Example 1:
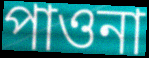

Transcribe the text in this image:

পাওনা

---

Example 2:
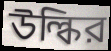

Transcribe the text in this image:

উল্কির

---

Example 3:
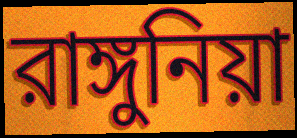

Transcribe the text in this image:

রাঙ্গুনিয়া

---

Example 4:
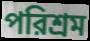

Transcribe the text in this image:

পরিশ্রম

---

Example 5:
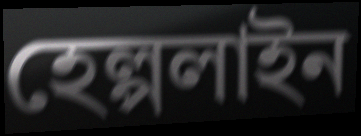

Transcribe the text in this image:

হেল্পলাইন